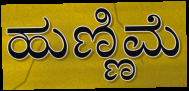
ಹುಣ್ಣಿಮೆ